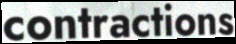
contractions